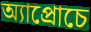
অ্যাপ্রোচে